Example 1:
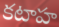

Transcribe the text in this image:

కటాహ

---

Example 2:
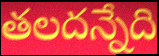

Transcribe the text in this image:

తలదన్నేది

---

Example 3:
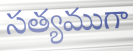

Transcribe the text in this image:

సత్యముగా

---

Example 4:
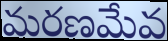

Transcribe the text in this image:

మరణమేవ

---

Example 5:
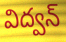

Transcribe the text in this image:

విద్వన్